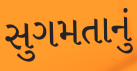
સુગમતાનું